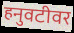
हनुवटीवर